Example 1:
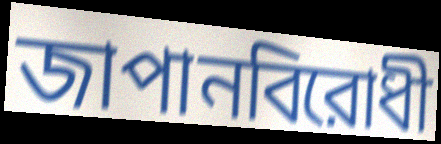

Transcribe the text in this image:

জাপানবিরোধী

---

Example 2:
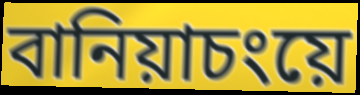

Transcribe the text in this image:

বানিয়াচংয়ে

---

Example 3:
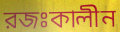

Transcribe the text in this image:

রজঃকালীন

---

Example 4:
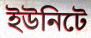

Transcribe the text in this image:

ইউনিটে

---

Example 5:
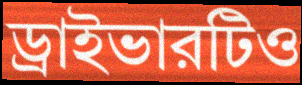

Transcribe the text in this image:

ড্রাইভারটিও